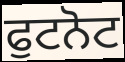
ਫੁਟਨੋਟ